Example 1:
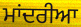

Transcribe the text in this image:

ਮਾਂਦਰੀਆ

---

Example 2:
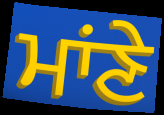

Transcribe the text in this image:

ਮਾਂਣੇ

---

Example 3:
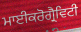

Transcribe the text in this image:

ਮਾਈਕਰੋਗ੍ਰੈਵਿਟੀ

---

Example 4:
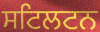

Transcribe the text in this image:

ਸਟਿਲਟਨ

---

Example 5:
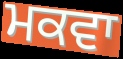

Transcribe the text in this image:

ਮਕਵਾ